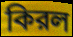
কিরল